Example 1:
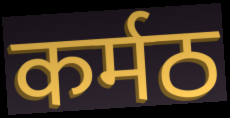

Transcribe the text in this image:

कर्मठ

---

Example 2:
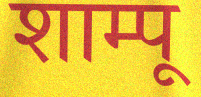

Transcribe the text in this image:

शाम्पू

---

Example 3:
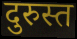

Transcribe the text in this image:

दुरुस्त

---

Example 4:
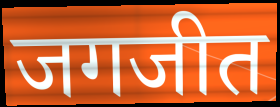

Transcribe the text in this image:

जगजीत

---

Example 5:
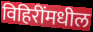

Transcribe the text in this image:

विहिरींमधील